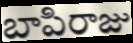
బాపిరాజు